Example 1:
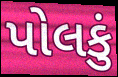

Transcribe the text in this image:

પોલકું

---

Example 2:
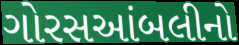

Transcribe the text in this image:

ગોરસઆંબલીનો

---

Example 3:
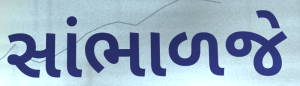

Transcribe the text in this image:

સાંભાળજે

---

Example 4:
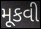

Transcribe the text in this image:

મૂકવી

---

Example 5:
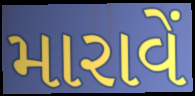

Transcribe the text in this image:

મારાવેં